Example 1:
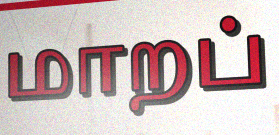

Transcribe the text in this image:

மாறப்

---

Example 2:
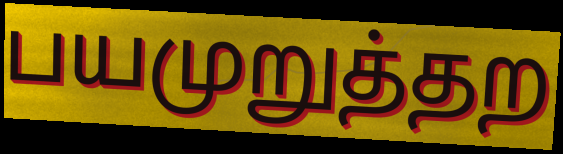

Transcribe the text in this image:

பயமுறுத்தற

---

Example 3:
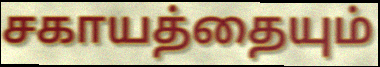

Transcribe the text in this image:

சகாயத்தையும்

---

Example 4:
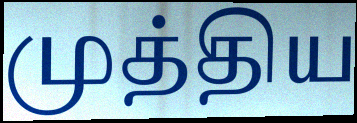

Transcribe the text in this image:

முத்திய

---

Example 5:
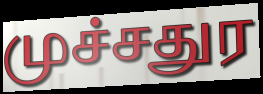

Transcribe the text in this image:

முச்சதுர